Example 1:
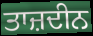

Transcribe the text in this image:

ਤਾਜ਼ਦੀਨ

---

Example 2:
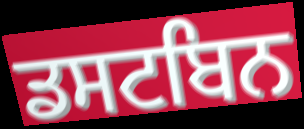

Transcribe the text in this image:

ਡਸਟਬਿਨ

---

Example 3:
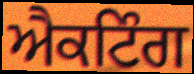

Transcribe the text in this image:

ਐਕਟਿੰਗ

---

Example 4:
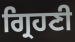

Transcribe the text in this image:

ਗ੍ਰਿਹਣੀ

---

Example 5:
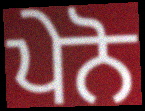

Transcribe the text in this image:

ਪੇਨੋ